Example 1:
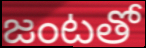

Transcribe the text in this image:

జంటతో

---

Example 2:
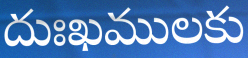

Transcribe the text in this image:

దుఃఖములకు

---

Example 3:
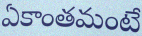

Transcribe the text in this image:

ఏకాంతమంటే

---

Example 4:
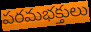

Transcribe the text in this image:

పరమభక్తులు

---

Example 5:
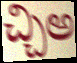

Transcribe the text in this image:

చ్చిఅ